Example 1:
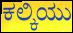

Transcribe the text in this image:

ಕಲ್ಕಿಯು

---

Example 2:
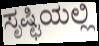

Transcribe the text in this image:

ಸೃಷ್ಟಿಯಲ್ಲಿ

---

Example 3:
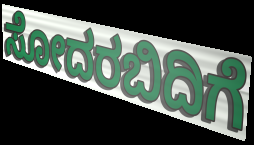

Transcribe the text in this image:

ಸೋದರಬಿದಿಗೆ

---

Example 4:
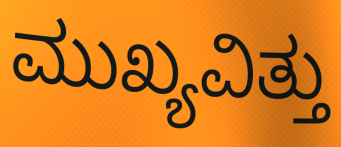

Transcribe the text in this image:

ಮುಖ್ಯವಿತ್ತು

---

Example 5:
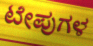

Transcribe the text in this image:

ಟೇಪುಗಳ